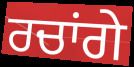
ਰਚਾਂਗੇ